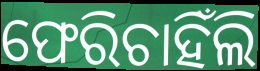
ଫେରିଚାହିଁଲି